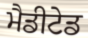
ਮੈਡੀਟੇਡ